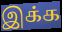
இக்க